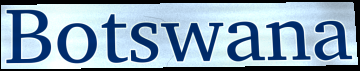
Botswana